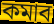
কমাব